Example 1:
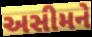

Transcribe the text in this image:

અસીમને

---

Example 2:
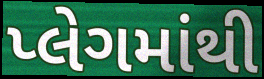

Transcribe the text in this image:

પ્લેગમાંથી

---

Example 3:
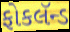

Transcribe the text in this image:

ફોકલૅન્ડ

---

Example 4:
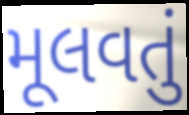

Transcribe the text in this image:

મૂલવતું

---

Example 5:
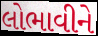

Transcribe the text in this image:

લોભાવીને